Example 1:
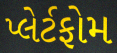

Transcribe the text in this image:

પ્લેર્ટફોમ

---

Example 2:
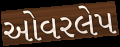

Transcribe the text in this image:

ઓવરલેપ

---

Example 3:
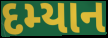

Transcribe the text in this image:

દમ્યાન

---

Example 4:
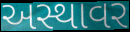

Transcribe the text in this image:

અસ્થાવર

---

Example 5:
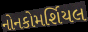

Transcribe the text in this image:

નોનકોમર્શિયલ